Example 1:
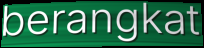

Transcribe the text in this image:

berangkat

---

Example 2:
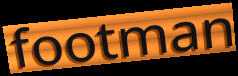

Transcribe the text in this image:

footman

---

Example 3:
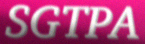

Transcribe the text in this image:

SGTPA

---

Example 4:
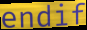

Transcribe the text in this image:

endif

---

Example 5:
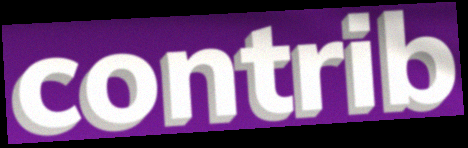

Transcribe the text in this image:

contrib